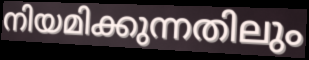
നിയമിക്കുന്നതിലും